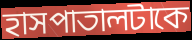
হাসপাতালটাকে